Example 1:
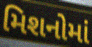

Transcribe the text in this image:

મિશનોમાં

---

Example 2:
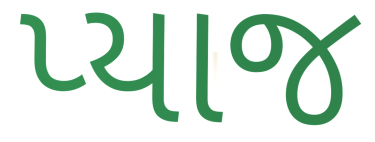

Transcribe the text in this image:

પ્યાજ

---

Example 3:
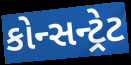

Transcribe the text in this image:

કોન્સન્ટ્રેટ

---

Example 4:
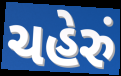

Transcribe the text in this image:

ચહેરું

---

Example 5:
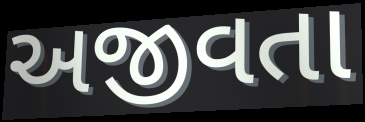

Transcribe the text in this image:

અજીવતા